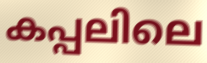
കപ്പലിലെ